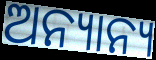
ଅନ୍ୟାନ୍ୟ